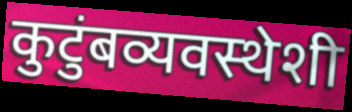
कुटुंबव्यवस्थेशी